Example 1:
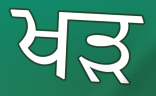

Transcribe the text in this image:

ਖੜ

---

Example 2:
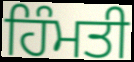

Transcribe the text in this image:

ਹਿੰਮਤੀ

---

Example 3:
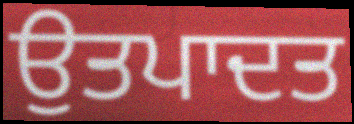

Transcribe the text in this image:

ਉਤਪਾਦਤ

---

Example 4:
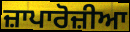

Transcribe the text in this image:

ਜ਼ਾਪਾਰੋਜ਼ੀਆ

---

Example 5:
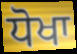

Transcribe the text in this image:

ਧੋਖਾ